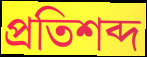
প্ৰতিশব্দ